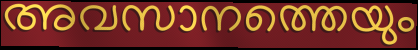
അവസാനത്തെയും